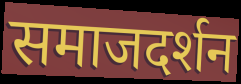
समाजदर्शन